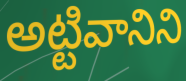
అట్టివానిని